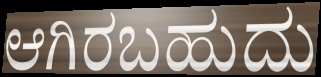
ಆಗಿರಬಹುದು